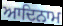
ਆਦਿਨਾਮ